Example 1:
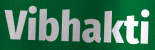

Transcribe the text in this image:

Vibhakti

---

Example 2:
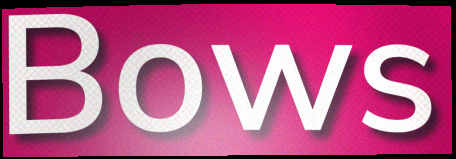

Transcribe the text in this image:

Bows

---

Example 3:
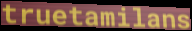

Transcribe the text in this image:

truetamilans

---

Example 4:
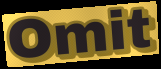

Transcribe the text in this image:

Omit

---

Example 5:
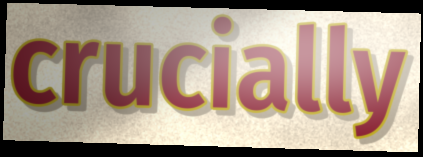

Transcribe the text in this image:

crucially